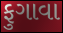
ફુગાવા